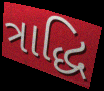
ત્રાદ્ધિ